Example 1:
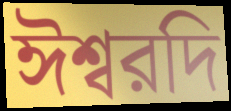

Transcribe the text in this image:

ঈশ্বরদি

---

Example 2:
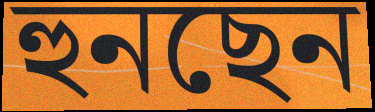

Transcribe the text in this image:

হুনছেন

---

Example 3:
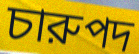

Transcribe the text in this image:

চারুপদ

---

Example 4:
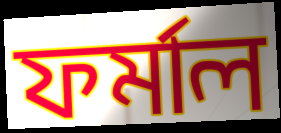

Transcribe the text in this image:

ফর্মাল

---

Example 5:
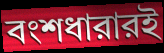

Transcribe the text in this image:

বংশধারারই